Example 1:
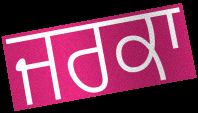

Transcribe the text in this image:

ਜਰਕਾ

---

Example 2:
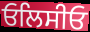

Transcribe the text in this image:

ਓਲਿਸੀਓ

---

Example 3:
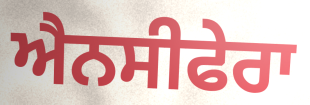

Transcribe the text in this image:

ਐਨਸੀਫੇਰਾ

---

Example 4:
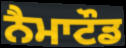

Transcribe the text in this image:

ਨੈਮਾਟੌਡ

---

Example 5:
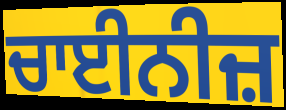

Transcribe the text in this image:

ਚਾਈਨੀਜ਼